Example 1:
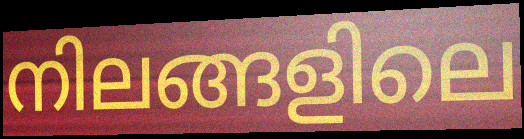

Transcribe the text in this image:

നിലങ്ങളിലെ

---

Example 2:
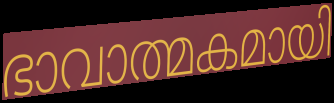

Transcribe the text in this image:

ഭാവാത്മകമായി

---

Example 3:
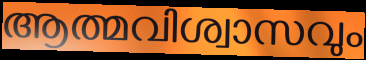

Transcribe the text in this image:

ആത്മവിശ്വാസവും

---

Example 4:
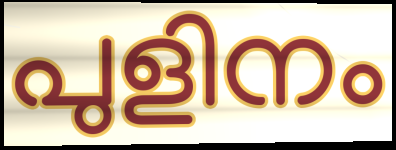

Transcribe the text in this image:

പുളിനം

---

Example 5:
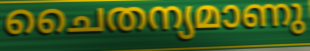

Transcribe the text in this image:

ചൈതന്യമാണു